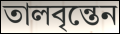
তালবৃন্তেন